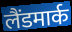
लैंडमार्क